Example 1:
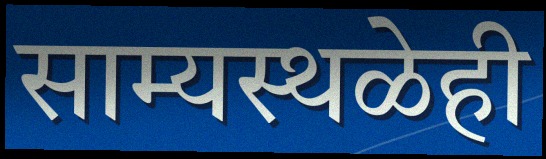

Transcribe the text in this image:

साम्यस्थळेही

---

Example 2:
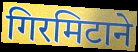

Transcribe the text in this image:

गिरमिटाने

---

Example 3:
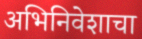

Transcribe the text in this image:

अभिनिवेशाचा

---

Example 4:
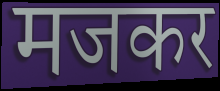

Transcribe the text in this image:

मजकर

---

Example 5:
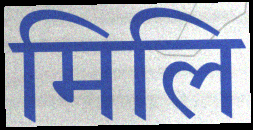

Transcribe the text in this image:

मिलि